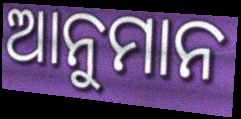
ଆନୁମାନ